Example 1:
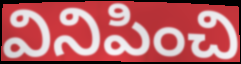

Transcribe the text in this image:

వినిపించి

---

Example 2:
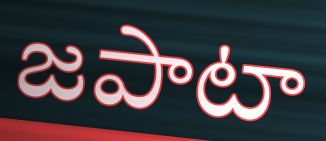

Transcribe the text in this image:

జపాటా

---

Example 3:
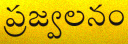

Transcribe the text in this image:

ప్రజ్వలనం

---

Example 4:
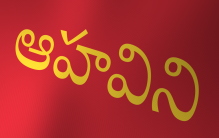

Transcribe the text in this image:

ఆహవిని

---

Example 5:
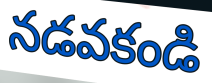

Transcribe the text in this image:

నడవకండి